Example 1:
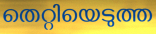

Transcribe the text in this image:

തെറ്റിയെടുത്ത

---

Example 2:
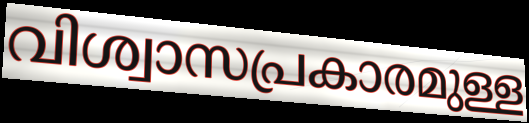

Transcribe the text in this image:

വിശ്വാസപ്രകാരമുള്ള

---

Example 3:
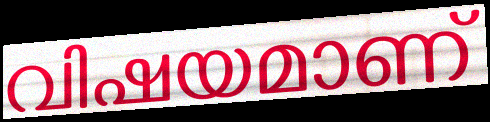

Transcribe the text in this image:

വിഷയമാണ്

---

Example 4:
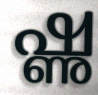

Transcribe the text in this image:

ഷ്ണു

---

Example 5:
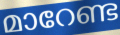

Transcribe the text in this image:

മാറേണ്ട